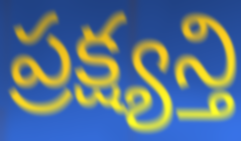
ప్రక్ష్యన్తి